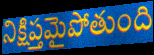
నిక్షిప్తమైపోతుంది